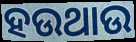
ହଉଥାଉ